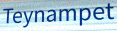
Teynampet